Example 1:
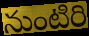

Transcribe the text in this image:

నుంటిరి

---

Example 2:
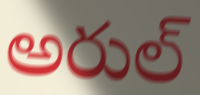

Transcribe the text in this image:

అరుల్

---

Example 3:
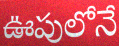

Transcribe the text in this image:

ఊపులోనే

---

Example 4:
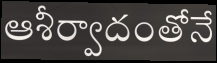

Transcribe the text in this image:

ఆశీర్వాదంతోనే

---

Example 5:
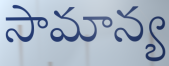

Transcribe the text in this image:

సామాన్య